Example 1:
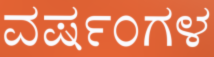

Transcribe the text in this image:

ವರ್ಷಂಗಳ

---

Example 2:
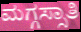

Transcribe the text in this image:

ಮಗ್ಗಸ್ಸಾತಿ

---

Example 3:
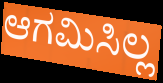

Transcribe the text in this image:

ಆಗಮಿಸಿಲ್ಲ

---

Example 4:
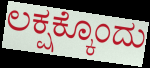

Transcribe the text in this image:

ಲಕ್ಷಕ್ಕೊಂದು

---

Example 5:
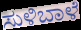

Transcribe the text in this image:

ಸುಳಿಬಾಳೆ